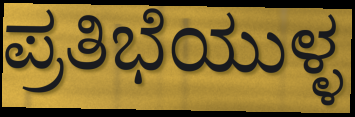
ಪ್ರತಿಭೆಯುಳ್ಳ